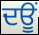
ਦਊਂ